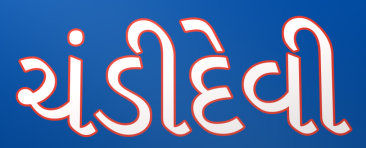
ચંડીદેવી